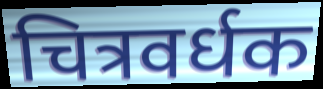
चित्रवर्धक